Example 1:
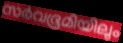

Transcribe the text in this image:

സർവഭൂമിയിലും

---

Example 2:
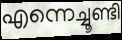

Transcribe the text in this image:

എന്നെച്ചൂണ്ടി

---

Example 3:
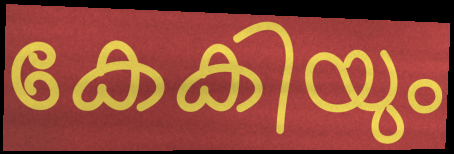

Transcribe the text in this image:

കേകിയും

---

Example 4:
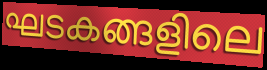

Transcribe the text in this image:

ഘടകങ്ങളിലെ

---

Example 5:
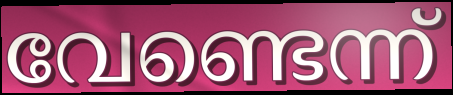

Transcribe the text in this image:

വേണ്ടെന്ന്